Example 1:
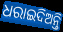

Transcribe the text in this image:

ଧରାଇଦିଅନ୍ତି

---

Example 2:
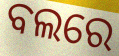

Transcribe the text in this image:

ବଲରେ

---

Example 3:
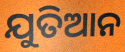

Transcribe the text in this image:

ଯୁତିଆନ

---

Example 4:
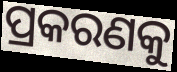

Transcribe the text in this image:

ପ୍ରକରଣକୁ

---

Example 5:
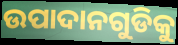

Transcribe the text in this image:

ଉପାଦାନଗୁଡିକୁ